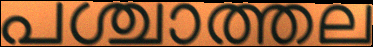
പശ്ചാത്തല